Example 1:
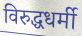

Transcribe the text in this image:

विरुद्धधर्मी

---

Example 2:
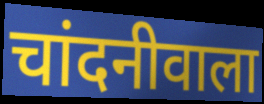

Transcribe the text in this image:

चांदनीवाला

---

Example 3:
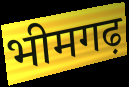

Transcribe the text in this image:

भीमगढ़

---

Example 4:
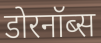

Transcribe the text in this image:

डोरनॉब्स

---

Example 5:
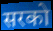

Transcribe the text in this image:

सरको